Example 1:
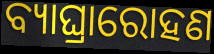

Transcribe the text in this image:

ବ୍ୟାଘ୍ରାରୋହଣ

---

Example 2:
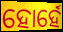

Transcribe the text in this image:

ହୋର୍ହେ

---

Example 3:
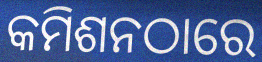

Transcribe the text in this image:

କମିଶନଠାରେ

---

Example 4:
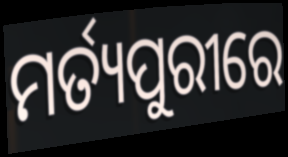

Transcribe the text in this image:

ମର୍ତ୍ୟପୁରୀରେ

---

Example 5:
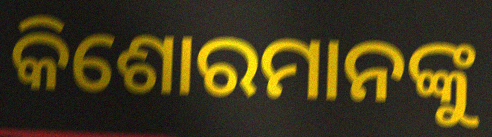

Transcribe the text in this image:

କିଶୋରମାନଙ୍କୁ